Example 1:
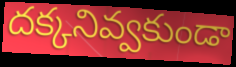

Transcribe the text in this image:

దక్కనివ్వకుండా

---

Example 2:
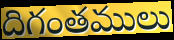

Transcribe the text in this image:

దిగంతములు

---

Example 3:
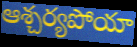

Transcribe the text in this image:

ఆశ్చర్యపోయా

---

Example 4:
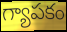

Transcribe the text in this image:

గ్యాపకం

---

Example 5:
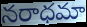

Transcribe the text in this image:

నరాధమా